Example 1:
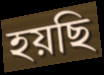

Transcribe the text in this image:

হয়ছি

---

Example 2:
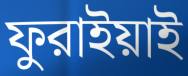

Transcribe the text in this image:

ফুরাইয়াই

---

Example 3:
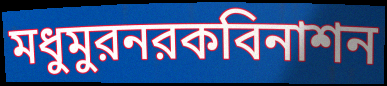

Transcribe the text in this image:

মধুমুরনরকবিনাশন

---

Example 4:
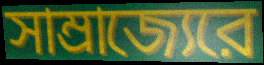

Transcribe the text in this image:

সাম্রাজ্যেরে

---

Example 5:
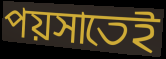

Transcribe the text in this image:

পয়সাতেই